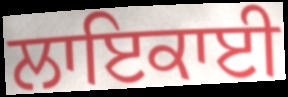
ਲਾਇਕਾਈ